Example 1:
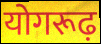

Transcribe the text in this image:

योगरूढ़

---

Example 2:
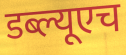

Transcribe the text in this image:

डब्ल्यूएच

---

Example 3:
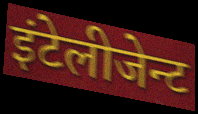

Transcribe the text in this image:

इंटेलीजेन्ट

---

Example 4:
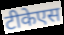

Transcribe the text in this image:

टीकेएस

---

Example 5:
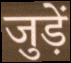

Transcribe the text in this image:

जुड़ें